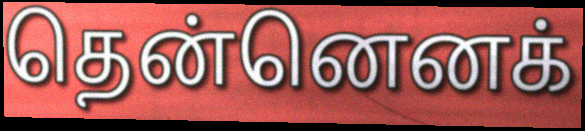
தென்னெனக்